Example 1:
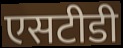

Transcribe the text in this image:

एसटीडी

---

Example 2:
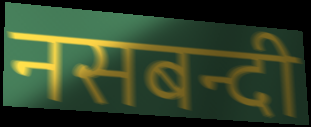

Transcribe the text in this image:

नसबन्दी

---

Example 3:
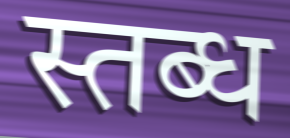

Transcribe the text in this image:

स्तब्ध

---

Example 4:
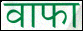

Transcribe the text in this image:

वाफा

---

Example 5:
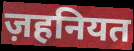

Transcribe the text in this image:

ज़हनियत